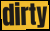
dirty